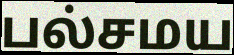
பல்சமய